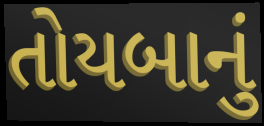
તોયબાનું